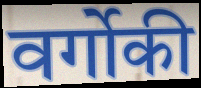
वर्गोकी